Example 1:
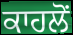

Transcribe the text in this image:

ਕਾਹਲੋਂ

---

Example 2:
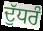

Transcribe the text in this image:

ਦੁੱਧਰੰ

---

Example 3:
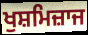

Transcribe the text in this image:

ਖੁਸ਼ਮਿਜ਼ਾਜ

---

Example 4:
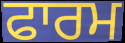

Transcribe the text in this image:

ਫਾਰਮ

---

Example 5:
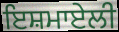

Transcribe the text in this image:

ਇਸ਼ਮਾਏਲੀ